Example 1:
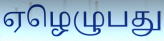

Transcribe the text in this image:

ஏழெழுபது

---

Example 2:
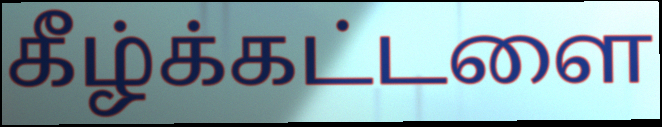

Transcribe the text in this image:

கீழ்க்கட்டளை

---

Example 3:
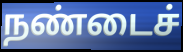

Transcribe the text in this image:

நண்டைச்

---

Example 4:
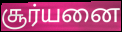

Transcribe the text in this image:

சூர்யனை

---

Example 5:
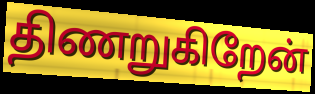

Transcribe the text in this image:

திணறுகிறேன்